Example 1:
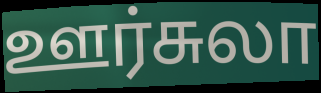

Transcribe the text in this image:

ஊர்சுலா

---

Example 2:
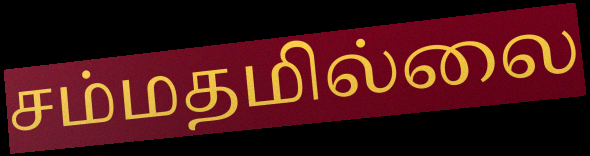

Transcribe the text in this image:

சம்மதமில்லை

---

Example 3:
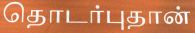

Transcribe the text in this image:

தொடர்புதான்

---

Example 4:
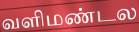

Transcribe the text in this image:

வளிமண்டல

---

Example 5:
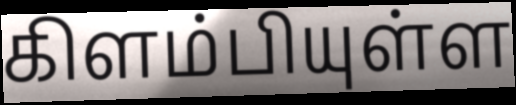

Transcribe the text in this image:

கிளம்பியுள்ள